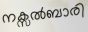
നക്സൽബാരി